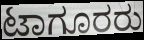
ಟಾಗೂರರು